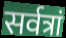
सर्वत्रां